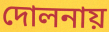
দোলনায়